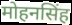
मोहनसिंह